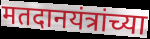
मतदानयंत्रांच्या